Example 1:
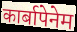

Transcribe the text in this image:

कार्बापेनेम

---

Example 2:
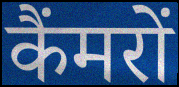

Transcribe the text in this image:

कैंमरों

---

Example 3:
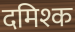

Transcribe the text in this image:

दमिश्क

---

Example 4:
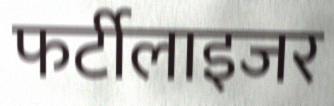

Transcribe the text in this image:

फर्टीलाइजर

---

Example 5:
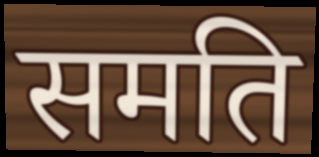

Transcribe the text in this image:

समति